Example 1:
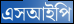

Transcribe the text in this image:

এসআইপি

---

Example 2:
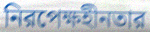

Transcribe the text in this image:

নিরপেক্ষহীনতার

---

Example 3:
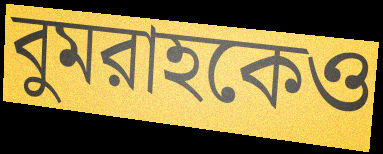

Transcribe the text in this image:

বুমরাহকেও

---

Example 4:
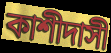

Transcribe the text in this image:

কাশীদাসী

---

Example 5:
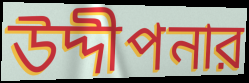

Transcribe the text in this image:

উদ্দীপনার